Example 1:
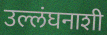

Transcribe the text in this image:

उल्लंघनाशी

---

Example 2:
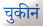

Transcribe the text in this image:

चुकीनं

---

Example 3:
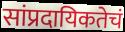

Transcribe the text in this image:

सांप्रदायिकतेचं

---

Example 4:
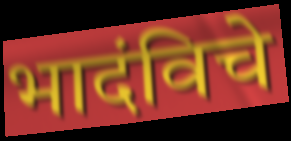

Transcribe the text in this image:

भादंविचे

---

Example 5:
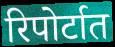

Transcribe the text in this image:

रिपोर्टात